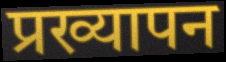
प्रख्यापन